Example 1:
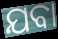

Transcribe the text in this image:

ଯବା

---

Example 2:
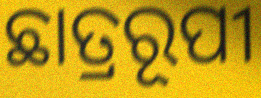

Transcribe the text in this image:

ଛାତ୍ରରୂପୀ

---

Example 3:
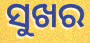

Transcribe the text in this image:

ସୁଖର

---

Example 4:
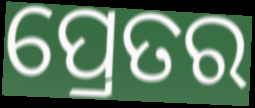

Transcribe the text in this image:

ପ୍ରେତର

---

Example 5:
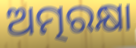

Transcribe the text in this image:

ଅତ୍ମରକ୍ଷା